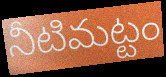
నీటిమట్టం